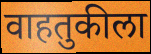
वाहतुकीला